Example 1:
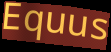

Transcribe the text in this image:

Equus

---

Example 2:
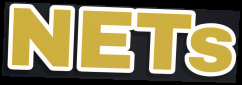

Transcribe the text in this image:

NETs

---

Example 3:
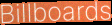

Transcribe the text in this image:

Billboards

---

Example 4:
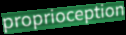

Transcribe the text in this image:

proprioception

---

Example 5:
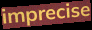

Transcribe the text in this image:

imprecise